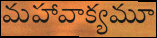
మహావాక్యమూ